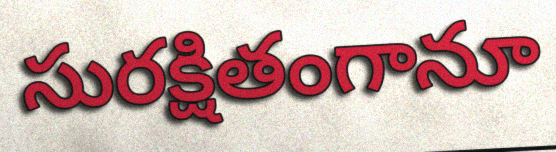
సురక్షితంగానూ